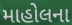
માહોલના